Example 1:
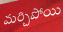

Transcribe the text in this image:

మర్చిపోయి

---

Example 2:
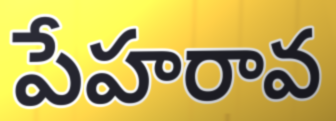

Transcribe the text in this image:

పేహరావ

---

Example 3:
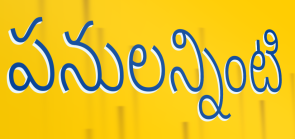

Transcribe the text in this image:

పనులన్నింటి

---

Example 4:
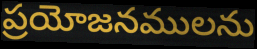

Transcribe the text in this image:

ప్రయోజనములను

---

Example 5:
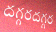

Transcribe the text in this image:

దగ్గరదగ్గర